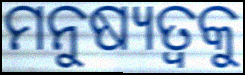
ମନୁଷ୍ୟତ୍ୱକୁ